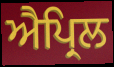
ਐਪ੍ਰਿਲ